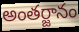
అంతర్జానం